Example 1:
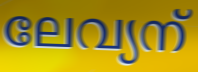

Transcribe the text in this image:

ലേവ്യന്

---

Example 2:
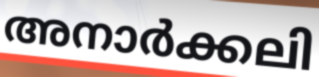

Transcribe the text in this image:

അനാർക്കലി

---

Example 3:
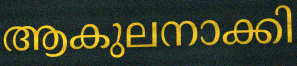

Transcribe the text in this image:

ആകുലനാക്കി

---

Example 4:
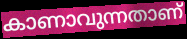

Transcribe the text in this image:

കാണാവുന്നതാണ്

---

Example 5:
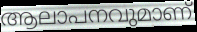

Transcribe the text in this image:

ആലാപനവുമാണ്